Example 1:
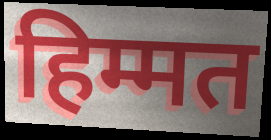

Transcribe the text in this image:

हिम्मत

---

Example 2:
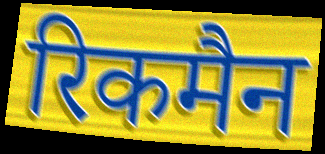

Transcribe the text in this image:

रिकमैन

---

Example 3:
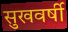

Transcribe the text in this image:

सुखवर्षी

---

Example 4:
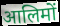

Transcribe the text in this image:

आलिमों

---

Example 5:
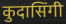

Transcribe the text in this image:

कुदासिंगी